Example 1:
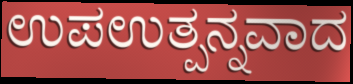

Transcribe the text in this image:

ಉಪಉತ್ಪನ್ನವಾದ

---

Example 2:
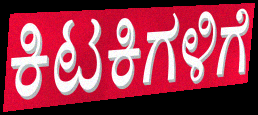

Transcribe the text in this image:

ಕಿಟಕಿಗಳಿಗೆ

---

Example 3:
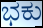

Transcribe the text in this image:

ಭಕು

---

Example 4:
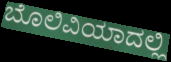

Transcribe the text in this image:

ಬೊಲಿವಿಯಾದಲ್ಲಿ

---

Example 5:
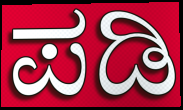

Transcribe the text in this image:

ಪಡಿ